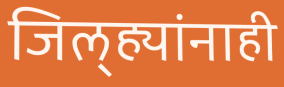
जिल्ह्यांनाही